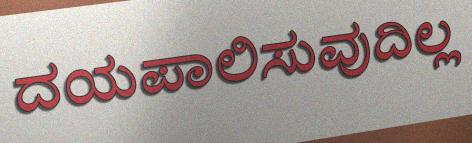
ದಯಪಾಲಿಸುವುದಿಲ್ಲ